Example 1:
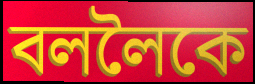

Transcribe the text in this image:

বললৈকে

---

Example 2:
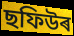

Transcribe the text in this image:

ছফিউৰ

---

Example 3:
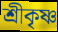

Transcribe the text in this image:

শ্ৰীকৃষ্ণ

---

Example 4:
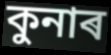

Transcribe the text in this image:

কুনাৰ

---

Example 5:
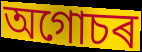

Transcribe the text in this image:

অগোচৰ